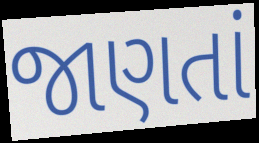
જાણતાં